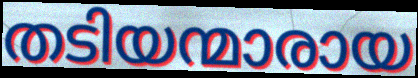
തടിയന്മാരായ